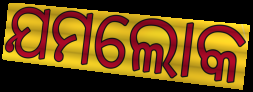
ଯମଲୋକ